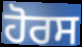
ਹੋਰਸ